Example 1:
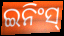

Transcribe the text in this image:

ଇନିଂସ୍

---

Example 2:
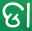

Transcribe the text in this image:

ଡା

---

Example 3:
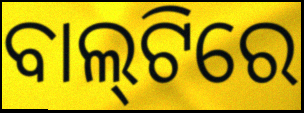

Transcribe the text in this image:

ବାଲ୍‌ଟିରେ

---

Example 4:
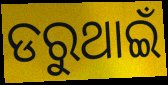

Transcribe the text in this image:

ଡରୁଥାଇଁ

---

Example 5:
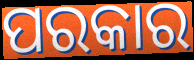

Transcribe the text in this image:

ପରକାର